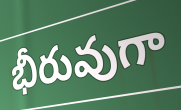
భీరువుగా